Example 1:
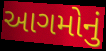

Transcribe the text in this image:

આગમોનું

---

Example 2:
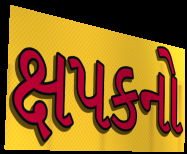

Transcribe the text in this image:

ક્ષપકનો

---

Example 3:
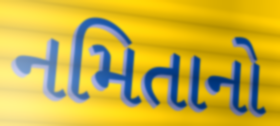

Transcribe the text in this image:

નમિતાનો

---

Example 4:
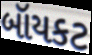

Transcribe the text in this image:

બૉયકટ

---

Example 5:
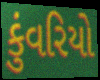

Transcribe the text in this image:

કુંવરિયો